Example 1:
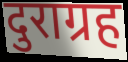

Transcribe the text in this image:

दुराग्रह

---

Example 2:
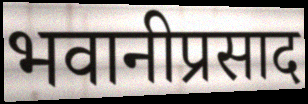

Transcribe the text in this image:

भवानीप्रसाद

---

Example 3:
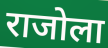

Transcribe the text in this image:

राजोला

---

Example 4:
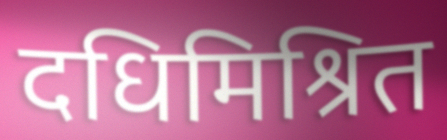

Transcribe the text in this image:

दधिमिश्रित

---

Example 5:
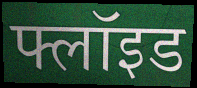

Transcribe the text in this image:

फ्लॉइड